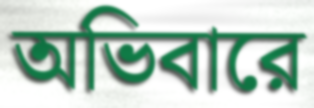
অভিবারে